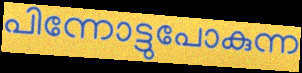
പിന്നോട്ടുപോകുന്ന